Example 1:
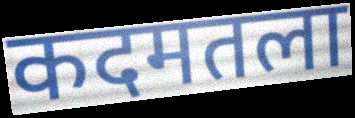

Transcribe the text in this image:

कदमतला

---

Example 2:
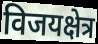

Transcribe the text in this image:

विजयक्षेत्र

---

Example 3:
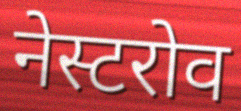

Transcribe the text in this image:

नेस्टरोव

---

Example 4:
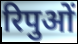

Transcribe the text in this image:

रिपुओं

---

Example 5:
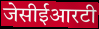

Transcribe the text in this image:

जेसीईआरटी